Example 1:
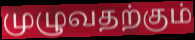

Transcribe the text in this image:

முழுவதற்கும்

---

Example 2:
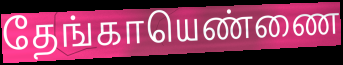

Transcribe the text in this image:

தேங்காயெண்ணை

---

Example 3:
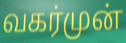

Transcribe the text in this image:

வகர்முன்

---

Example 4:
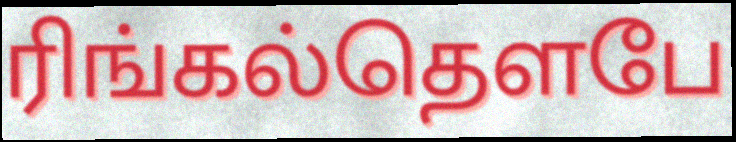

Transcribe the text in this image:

ரிங்கல்தௌபே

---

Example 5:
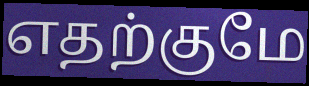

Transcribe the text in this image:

எதற்குமே